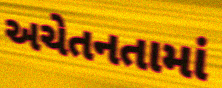
અચેતનતામાં